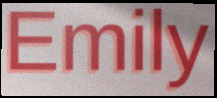
Emily